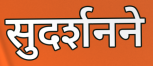
सुदर्शनने